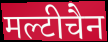
मल्टीचैन